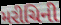
મરીચિની